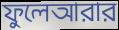
ফুলেআরার